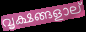
വൃക്ഷങ്ങളാല്